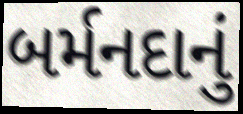
બર્મનદાનું